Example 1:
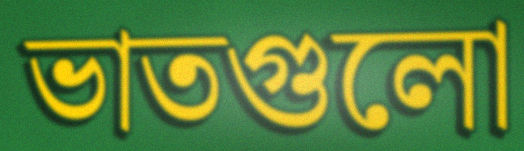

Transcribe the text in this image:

ভাতগুলো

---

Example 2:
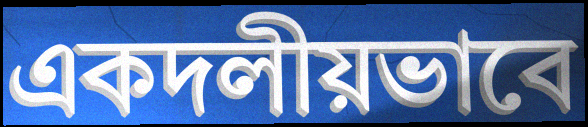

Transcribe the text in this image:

একদলীয়ভাবে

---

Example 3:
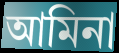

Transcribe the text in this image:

আমিনা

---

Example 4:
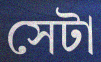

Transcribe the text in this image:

সেটা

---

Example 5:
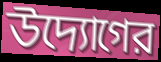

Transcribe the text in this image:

উদ্যোগের